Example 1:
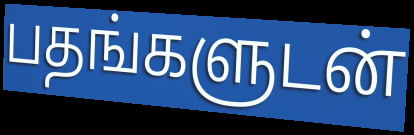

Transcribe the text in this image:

பதங்களுடன்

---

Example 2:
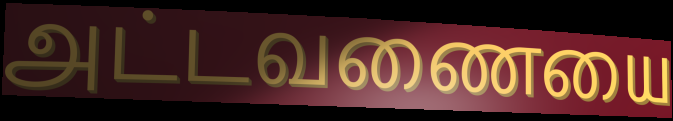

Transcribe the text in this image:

அட்டவணையை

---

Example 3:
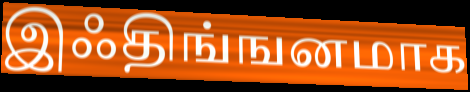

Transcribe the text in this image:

இஃதிங்ஙனமாக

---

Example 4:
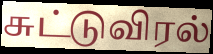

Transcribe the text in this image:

சுட்டுவிரல்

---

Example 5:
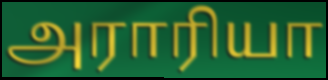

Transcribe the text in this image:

அராரியா